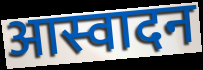
आस्वादन